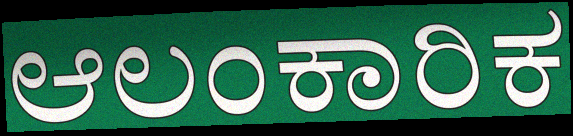
ಆಲಂಕಾರಿಕ